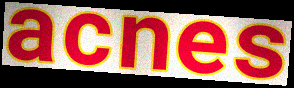
acnes